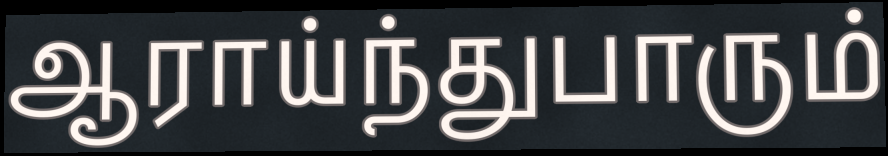
ஆராய்ந்துபாரும்